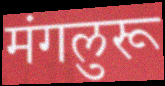
मंगलुरू